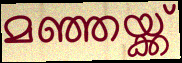
മഞ്ഞയ്ക്ക്